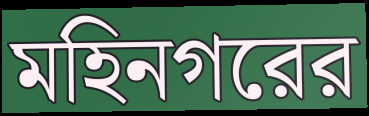
মহিনগরের